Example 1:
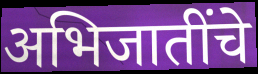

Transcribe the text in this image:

अभिजातींचे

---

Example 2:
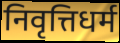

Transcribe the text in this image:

निवृत्तिधर्म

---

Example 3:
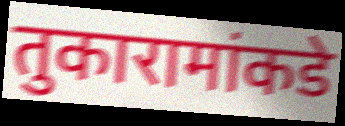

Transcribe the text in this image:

तुकारामांकडे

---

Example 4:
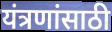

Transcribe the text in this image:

यंत्रणांसाठी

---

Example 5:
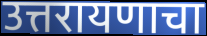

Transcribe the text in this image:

उत्तरायणाचा